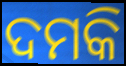
ଦମକି